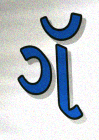
ગૅ